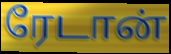
ரேடான்